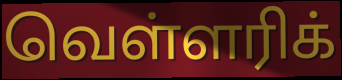
வெள்ளரிக்